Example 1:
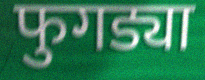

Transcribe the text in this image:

फुगड्या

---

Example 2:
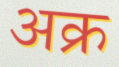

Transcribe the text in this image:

अक्र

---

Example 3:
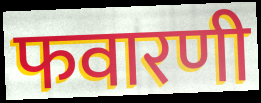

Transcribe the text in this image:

फवारणी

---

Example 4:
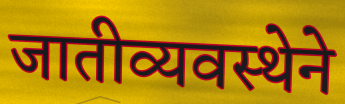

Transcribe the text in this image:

जातीव्यवस्थेने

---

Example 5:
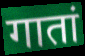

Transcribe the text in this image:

गातां